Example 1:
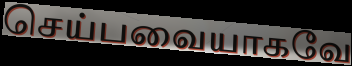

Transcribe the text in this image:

செய்பவையாகவே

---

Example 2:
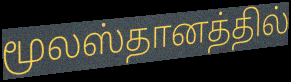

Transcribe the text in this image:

மூலஸ்தானத்தில்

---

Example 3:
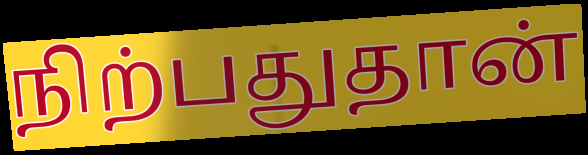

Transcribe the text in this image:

நிற்பதுதான்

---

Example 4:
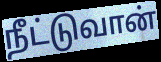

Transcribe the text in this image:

நீட்டுவான்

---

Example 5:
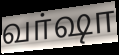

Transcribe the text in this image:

வர்ஷா